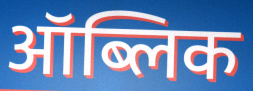
ऑब्लिक